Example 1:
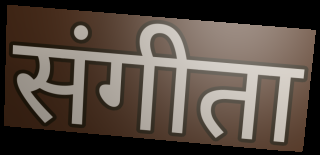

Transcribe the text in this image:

संगीता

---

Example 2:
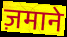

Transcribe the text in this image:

ज़माने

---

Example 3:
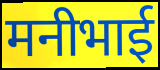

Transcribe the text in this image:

मनीभाई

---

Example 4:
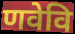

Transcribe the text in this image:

णवेवि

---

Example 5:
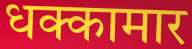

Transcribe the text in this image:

धक्कामार